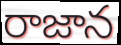
రాజాన